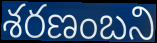
శరణంబని